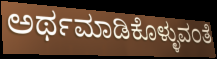
ಅರ್ಥಮಾಡಿಕೊಳ್ಳುವಂತೆ